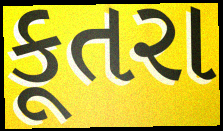
કૂતરા